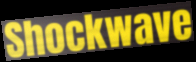
Shockwave